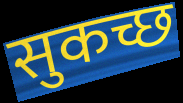
सुकच्छ